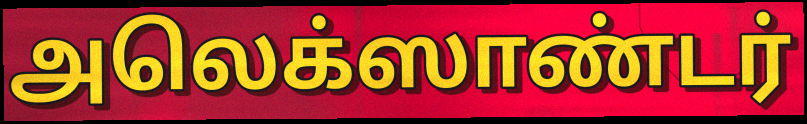
அலெக்ஸாண்டர்